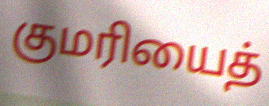
குமரியைத்